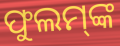
ଫୁଲମ୍‌ଙ୍କ